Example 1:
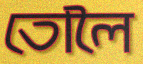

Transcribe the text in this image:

তোলৈ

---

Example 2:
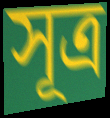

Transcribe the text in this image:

সূত্ৰ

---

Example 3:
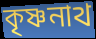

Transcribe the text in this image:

কৃষ্ণনাথ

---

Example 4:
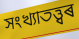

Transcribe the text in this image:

সংখ্যাতত্ত্বৰ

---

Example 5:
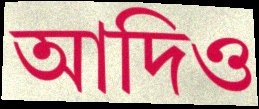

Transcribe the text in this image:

আদিও